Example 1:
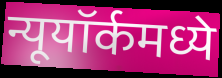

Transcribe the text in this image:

न्यूयॉर्कमध्ये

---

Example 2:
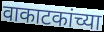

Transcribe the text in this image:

वाकाटकांच्या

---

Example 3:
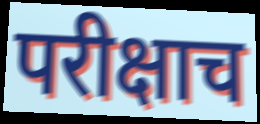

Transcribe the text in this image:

परीक्षाच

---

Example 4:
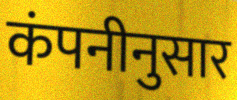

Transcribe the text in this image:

कंपनीनुसार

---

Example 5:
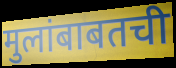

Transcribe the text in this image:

मुलांबाबतची